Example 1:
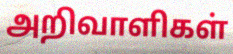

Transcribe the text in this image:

அறிவாளிகள்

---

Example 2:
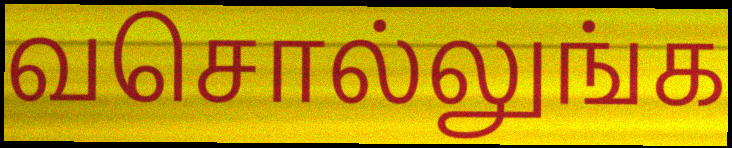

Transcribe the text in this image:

வசொல்லுங்க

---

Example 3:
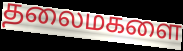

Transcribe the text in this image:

தலைமகளை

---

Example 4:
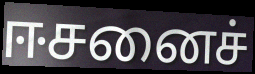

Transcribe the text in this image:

ஈசனைச்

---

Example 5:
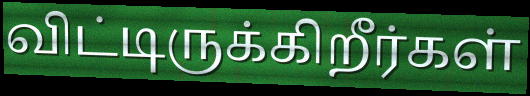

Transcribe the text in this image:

விட்டிருக்கிறீர்கள்